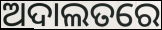
ଅଦାଲତରେ